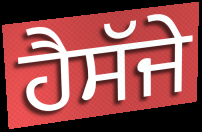
ਹੈਸੱਜੇ